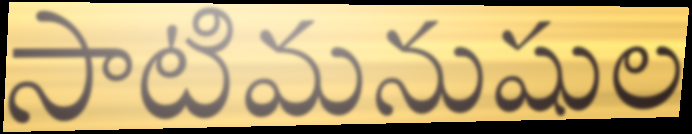
సాటిమనుషుల